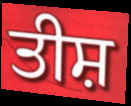
ਤੀਸ਼